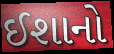
ઈશાનો